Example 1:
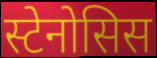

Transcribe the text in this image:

स्टेनोसिस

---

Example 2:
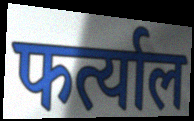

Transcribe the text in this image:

फर्त्याल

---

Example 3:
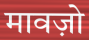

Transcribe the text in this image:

मावज़ो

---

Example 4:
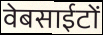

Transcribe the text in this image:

वेबसाईटों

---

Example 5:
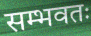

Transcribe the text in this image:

सम्भवतः